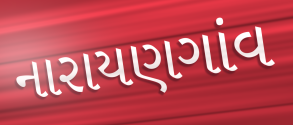
નારાયણગાંવ